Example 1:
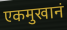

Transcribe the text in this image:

एकमुखानं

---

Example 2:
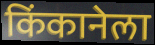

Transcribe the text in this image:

किंकानेला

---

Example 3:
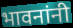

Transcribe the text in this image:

भावनांनी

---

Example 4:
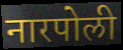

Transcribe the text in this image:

नारपोली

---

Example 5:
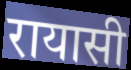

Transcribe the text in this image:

रायासी